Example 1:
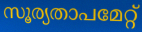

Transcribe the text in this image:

സൂര്യതാപമേറ്റ്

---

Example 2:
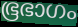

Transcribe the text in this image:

ഭൂഭാഗം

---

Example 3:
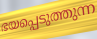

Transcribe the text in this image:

ഭയപ്പെടുത്തുന്ന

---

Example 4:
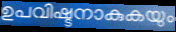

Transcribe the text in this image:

ഉപവിഷ്ടനാകുകയും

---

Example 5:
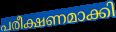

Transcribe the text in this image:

പരീക്ഷണമാക്കി